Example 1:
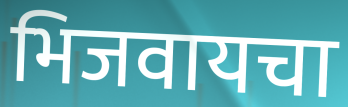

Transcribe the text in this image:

भिजवायचा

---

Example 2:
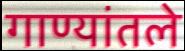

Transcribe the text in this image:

गाण्यांतले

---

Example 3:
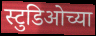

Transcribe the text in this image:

स्टुडिओच्या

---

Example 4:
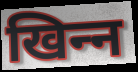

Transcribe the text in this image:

खिन्‍न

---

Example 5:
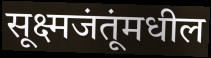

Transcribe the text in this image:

सूक्ष्मजंतूंमधील